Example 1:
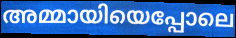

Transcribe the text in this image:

അമ്മായിയെപ്പോലെ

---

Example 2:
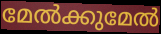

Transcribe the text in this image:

മേൽക്കുമേൽ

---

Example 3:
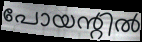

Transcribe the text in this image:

പോയന്റിൽ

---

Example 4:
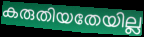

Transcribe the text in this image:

കരുതിയതേയില്ല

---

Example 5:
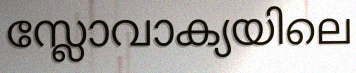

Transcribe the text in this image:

സ്ലോവാക്യയിലെ